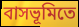
বাসভূমিতে